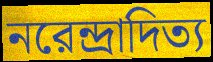
নরেন্দ্রাদিত্য